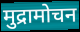
मुद्रामोचन